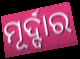
ମୂର୍ଦ୍ଦାର